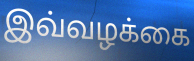
இவ்வழக்கை